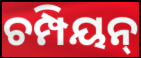
ଚମ୍ପିୟନ୍